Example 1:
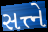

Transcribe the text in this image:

સત્ત્ને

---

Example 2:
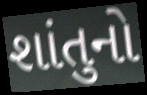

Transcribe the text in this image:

શાંતુનો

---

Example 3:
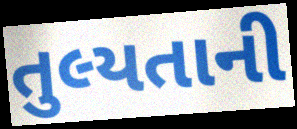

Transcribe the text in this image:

તુલ્યતાની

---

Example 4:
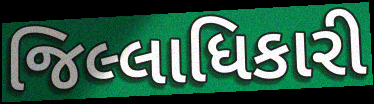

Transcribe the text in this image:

જિલ્લાધિકારી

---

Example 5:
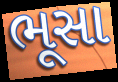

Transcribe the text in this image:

ભૂસા